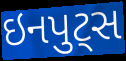
ઇનપુટ્સ